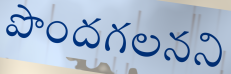
పొందగలనని